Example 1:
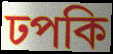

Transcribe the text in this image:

ঢপকি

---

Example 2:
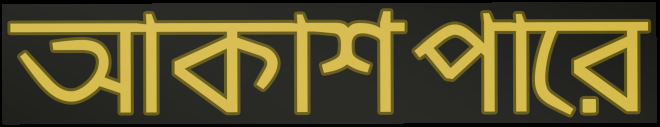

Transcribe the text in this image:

আকাশপারে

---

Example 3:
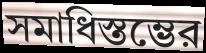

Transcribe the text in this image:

সমাধিস্তম্ভের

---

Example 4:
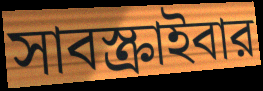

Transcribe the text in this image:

সাবস্ক্রাইবার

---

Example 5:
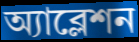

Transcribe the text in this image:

অ্যাব্লেশন